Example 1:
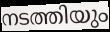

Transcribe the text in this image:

നടത്തിയും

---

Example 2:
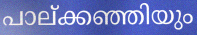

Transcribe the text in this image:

പാല്ക്കഞ്ഞിയും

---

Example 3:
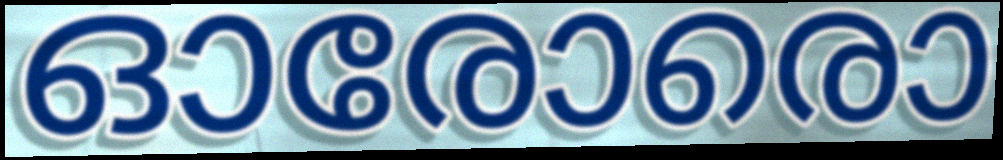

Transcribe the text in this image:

ഓരോരൊ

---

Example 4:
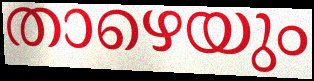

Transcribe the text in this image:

താഴെയും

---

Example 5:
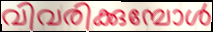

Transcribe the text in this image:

വിവരിക്കുമ്പോൾ